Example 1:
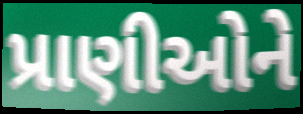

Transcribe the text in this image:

પ્રાણીઓને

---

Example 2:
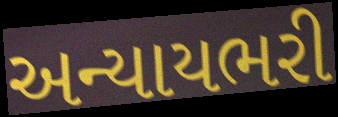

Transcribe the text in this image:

અન્યાયભરી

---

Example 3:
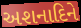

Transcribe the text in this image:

અશનાદિને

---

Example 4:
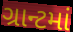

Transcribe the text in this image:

ગ્રાન્ટમાં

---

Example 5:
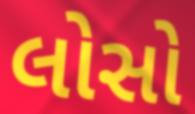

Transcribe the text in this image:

લોસો